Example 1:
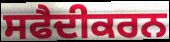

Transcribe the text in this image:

ਸਫੈਦੀਕਰਨ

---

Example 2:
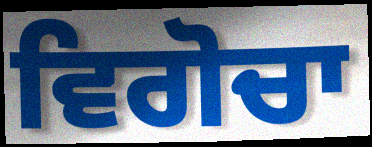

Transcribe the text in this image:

ਵਿਗੋਚਾ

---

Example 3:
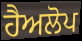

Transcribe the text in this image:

ਹੈਅਲੋਪ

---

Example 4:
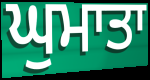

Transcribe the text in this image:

ਘੁਮਾਤਾ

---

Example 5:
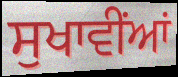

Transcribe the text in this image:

ਸੁਖਾਵੀਂਆਂ